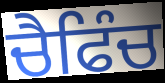
ਚੈਫਿੰਚ